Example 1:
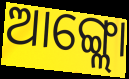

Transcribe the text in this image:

ଆଙ୍ଗ୍ଲୋ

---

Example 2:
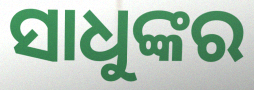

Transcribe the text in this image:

ସାଧୁଙ୍କର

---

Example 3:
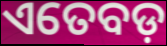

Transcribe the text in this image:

ଏତେବଡ଼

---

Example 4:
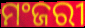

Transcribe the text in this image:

ମଂଜରୀ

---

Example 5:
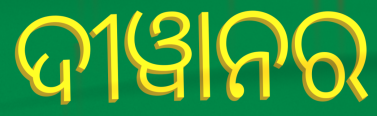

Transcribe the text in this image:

ଦୀୱାନର